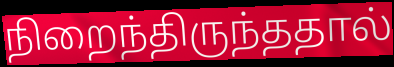
நிறைந்திருந்ததால்